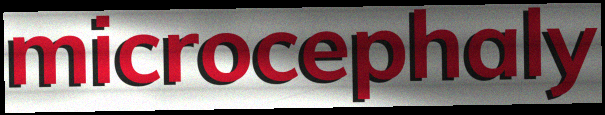
microcephaly